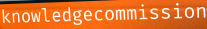
knowledgecommission